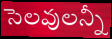
సెలవులన్నీ